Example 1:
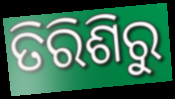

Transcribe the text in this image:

ତିରିଶିରୁ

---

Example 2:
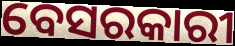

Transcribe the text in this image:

ବେସରକାରୀ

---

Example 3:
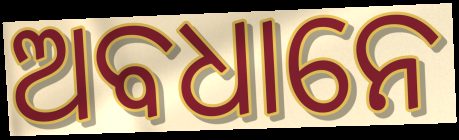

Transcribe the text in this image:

ଅବଧାନେ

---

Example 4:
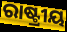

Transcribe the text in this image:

ରାଷ୍ଟ୍ରୀୟ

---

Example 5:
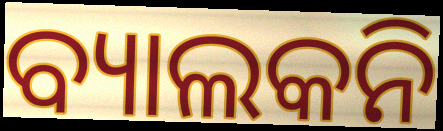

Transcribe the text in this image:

ବ୍ୟାଲକନି